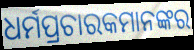
ଧର୍ମପ୍ରଚାରକମାନଙ୍କର